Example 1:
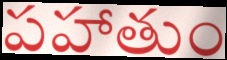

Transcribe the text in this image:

పహాతుం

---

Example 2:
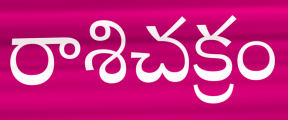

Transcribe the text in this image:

రాశిచక్రం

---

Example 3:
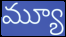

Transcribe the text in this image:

మ్యూ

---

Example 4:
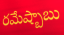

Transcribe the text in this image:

రమేష్బాబు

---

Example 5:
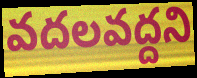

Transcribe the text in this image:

వదలవద్దని